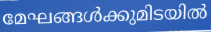
മേഘങ്ങൾക്കുമിടയിൽ